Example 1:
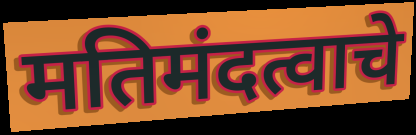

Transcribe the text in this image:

मतिमंदत्वाचे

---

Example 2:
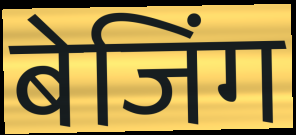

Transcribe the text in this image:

बेजिंग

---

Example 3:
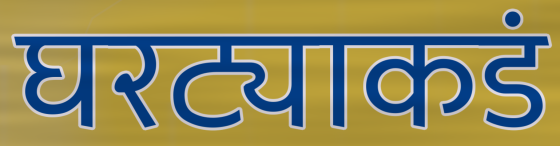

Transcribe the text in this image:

घरट्याकडं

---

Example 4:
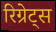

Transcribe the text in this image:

रिग्रेट्स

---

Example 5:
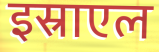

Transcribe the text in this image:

इस्राएल